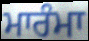
ਮਾਰੰਮਾ